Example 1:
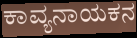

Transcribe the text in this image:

ಕಾವ್ಯನಾಯಕನ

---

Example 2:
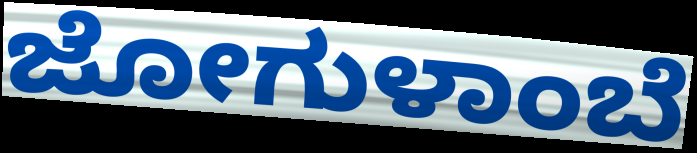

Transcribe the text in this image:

ಜೋಗುಳಾಂಬೆ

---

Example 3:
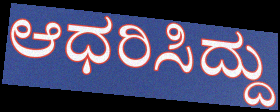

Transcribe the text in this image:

ಆಧರಿಸಿದ್ದು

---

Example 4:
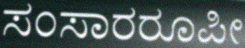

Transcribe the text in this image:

ಸಂಸಾರರೂಪೀ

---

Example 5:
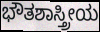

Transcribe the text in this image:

ಭೌತಶಾಸ್ತ್ರೀಯ